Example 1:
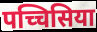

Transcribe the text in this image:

पच्चिसिया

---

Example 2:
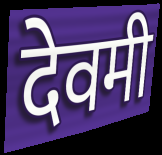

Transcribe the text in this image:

देवमी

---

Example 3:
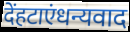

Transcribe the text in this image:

देंहटाएंधन्यवाद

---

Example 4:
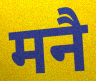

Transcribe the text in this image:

मनै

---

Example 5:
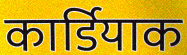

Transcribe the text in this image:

कार्डियाक